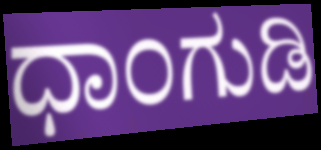
ಧಾಂಗುಡಿ